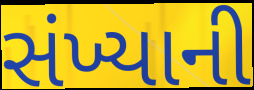
સંખ્યાની